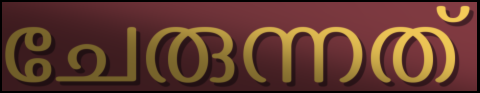
ചേരുന്നത്